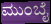
ಮುಂಬೈ